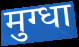
मुग्धा